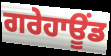
ਗਰੇਹਾਊਂਡ